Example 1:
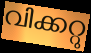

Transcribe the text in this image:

വിക്കറ്റു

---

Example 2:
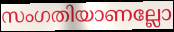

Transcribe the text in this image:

സംഗതിയാണല്ലോ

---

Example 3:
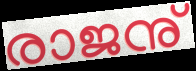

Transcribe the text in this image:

രാജനു്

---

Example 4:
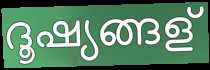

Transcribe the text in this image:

ദൂഷ്യങ്ങള്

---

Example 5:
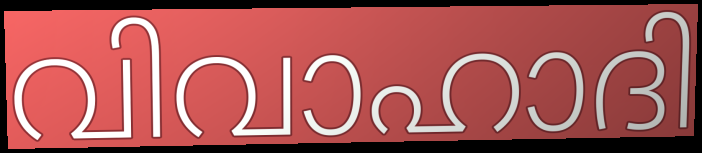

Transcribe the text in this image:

വിവാഹാദി